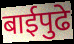
बाईपुढे